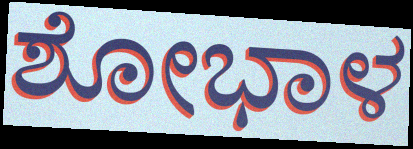
ಶೋಭಾಳ